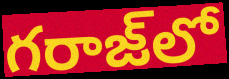
గరాజ్‌లో